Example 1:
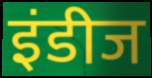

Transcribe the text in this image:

इंडीज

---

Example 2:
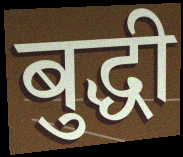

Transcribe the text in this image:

बुद्धी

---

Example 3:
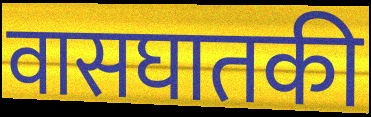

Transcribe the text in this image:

वासघातकी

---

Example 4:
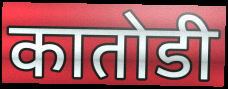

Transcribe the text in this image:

कातोडी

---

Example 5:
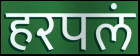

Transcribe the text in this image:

हरपलं